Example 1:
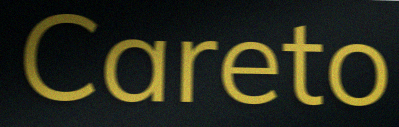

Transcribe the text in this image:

Careto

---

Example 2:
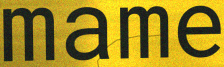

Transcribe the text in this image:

mame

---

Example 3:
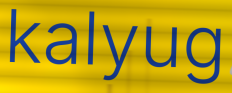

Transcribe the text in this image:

kalyug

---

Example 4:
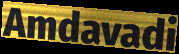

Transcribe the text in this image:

Amdavadi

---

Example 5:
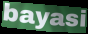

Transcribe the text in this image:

bayasi